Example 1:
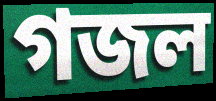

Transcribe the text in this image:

গজল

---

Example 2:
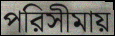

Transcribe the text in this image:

পরিসীমায়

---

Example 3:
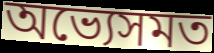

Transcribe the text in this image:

অভ্যেসমত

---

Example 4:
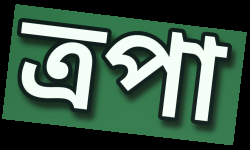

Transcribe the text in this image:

ত্রপা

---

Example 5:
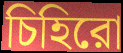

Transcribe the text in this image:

চিহিরো